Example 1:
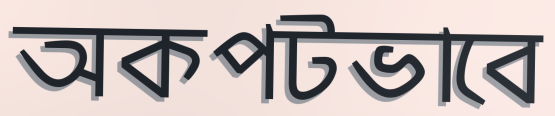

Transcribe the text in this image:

অকপটভাবে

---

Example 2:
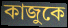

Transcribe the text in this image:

কাজুকে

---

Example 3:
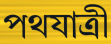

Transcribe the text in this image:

পথযাত্রী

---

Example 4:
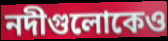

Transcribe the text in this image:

নদীগুলোকেও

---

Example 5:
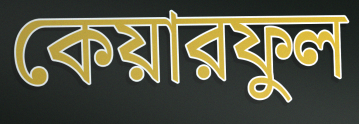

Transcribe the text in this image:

কেয়ারফুল